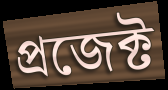
প্ৰজেক্ট